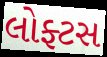
લોફ્ટસ